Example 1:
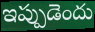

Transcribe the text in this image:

ఇప్పుడెందు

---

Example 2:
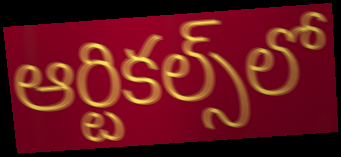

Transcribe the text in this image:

ఆర్టికల్స్‌లో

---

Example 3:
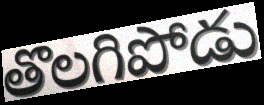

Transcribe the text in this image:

తొలగిపోడు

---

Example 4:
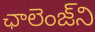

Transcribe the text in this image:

ఛాలెంజ్‌ని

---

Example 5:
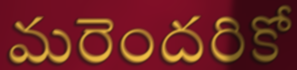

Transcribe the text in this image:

మరెందరికో